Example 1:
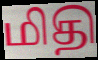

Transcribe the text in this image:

மிதி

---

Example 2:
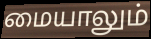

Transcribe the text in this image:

மையாலும்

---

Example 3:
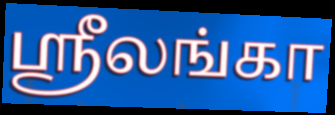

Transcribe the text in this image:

ஶ்ரீலங்கா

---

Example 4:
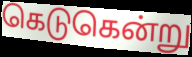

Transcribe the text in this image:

கெடுகென்று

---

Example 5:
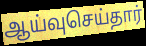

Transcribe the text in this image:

ஆய்வுசெய்தார்